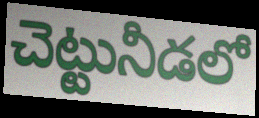
చెట్టునీడలో